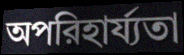
অপরিহার্য্যতা